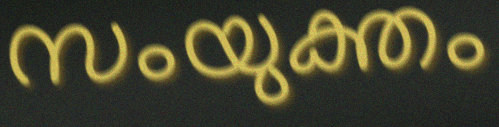
സംയുക്തം